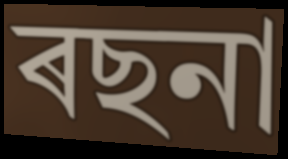
ৰছনা